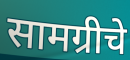
सामग्रीचे